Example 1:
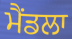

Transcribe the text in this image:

ਮੈਂਡਲਾ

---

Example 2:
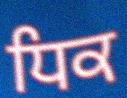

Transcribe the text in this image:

ਧਿਕ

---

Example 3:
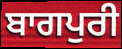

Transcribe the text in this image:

ਬਾਗਪੁਰੀ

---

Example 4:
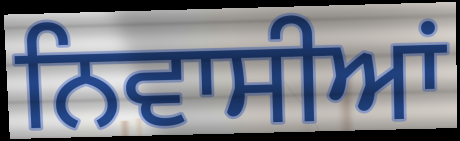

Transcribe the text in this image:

ਨਿਵਾਸੀਆਂ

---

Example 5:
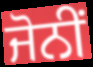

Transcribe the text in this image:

ਜੋਨੀਂ